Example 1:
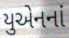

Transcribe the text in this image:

યુએનનાં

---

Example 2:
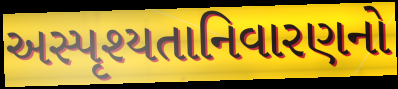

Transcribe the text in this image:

અસ્પૃશ્યતાનિવારણનો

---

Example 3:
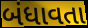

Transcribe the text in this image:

બંધાવતા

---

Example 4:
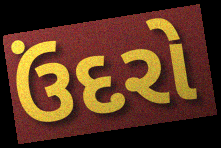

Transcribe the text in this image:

ઉંદરો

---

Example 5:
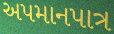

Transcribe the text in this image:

અપમાનપાત્ર